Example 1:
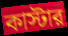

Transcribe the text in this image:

কাস্টার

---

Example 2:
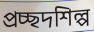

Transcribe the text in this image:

প্রচ্ছদশিল্প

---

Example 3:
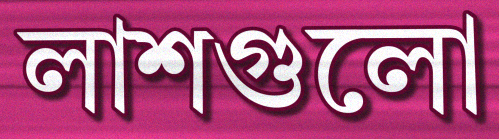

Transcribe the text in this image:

লাশগুলো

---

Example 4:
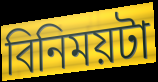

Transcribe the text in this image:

বিনিময়টা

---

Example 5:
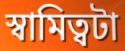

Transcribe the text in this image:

স্বামিত্বটা